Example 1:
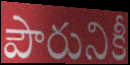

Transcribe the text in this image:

పౌరునికీ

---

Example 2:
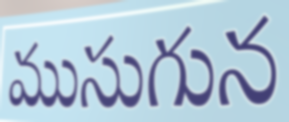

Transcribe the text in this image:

ముసుగున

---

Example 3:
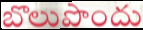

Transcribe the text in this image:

బొలుపొందు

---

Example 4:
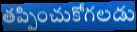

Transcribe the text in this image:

తప్పించుకోగలడు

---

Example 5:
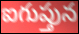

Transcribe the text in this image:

ఐగుప్తున